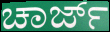
ಚಾರ್ಜ್